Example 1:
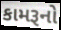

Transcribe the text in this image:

કામરૂનો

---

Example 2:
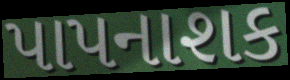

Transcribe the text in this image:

પાપનાશક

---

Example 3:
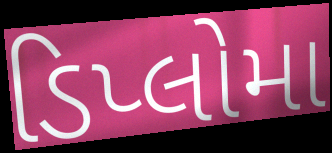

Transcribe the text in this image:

ડિપ્લોમા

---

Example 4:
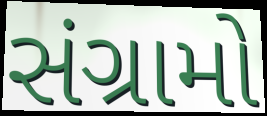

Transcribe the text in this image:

સંગ્રામો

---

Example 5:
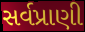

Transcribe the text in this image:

સર્વપ્રાણી